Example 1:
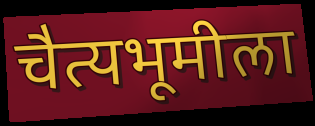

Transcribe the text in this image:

चैत्यभूमीला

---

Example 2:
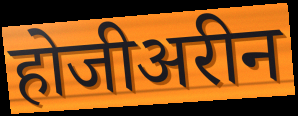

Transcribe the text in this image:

होजीअरीन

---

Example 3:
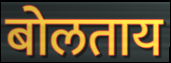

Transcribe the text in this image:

बोलताय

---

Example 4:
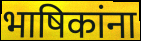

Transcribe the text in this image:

भाषिकांना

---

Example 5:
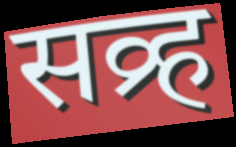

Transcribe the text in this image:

सव्र्ह